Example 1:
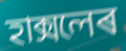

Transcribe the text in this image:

হাক্সলেৰ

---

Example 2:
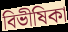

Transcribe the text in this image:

বিভীষিকা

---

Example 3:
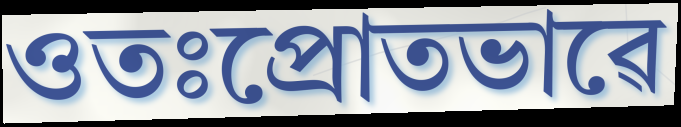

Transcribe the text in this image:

ওতঃপ্ৰোতভাৱে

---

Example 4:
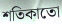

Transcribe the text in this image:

শতিকাতো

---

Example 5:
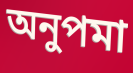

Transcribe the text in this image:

অনুপমা